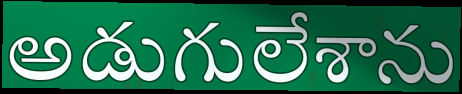
అడుగులేశాను